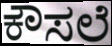
ಕೌಸಲೆ